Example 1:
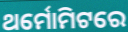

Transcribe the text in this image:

ଥର୍ମୋମିଟରେ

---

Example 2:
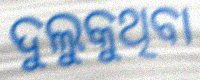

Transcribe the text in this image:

ଦୁଲୁକୁଥିବା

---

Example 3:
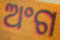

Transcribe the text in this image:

ଅଂଗ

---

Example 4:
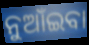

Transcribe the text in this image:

ନୁଆଁଇବା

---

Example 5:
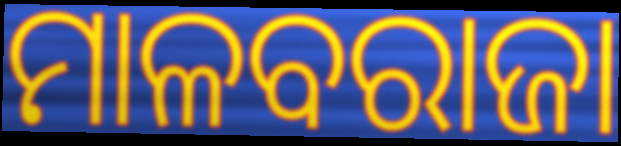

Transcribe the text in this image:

ମାଳବରାଜା